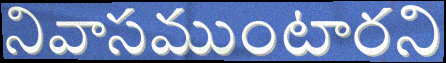
నివాసముంటారని